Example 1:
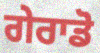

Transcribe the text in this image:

ਗੇਰਾਡੋ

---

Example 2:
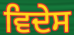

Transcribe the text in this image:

ਵਿਦੇਸ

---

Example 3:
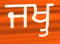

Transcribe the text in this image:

ਜਖ੍ਤ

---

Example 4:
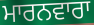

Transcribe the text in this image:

ਮਾਰਨਵਾਰਾ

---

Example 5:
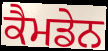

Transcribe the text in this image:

ਕੈਮਡੇਨ